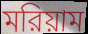
মরিয়াম